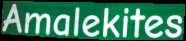
Amalekites